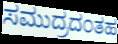
ಸಮುದ್ರದಂತಹ